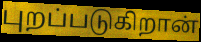
புறப்படுகிறான்